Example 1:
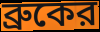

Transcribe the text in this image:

ব্রুকের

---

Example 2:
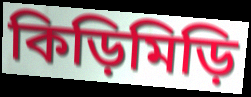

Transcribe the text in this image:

কিড়িমিড়ি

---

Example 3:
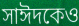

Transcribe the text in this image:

সাঈদকেও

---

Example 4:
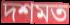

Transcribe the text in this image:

দশমত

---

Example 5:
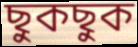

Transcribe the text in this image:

ছুকছুক